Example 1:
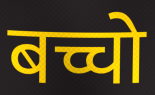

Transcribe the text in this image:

बच्चो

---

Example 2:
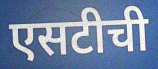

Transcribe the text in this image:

एसटीची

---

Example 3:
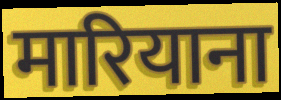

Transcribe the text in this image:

मारियाना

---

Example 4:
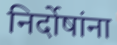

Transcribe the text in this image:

निर्दोषांना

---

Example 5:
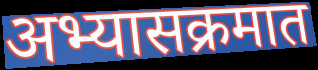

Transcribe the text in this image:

अभ्यासक्रमात